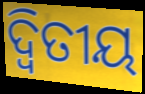
ଦ୍ୱିତୀୟ